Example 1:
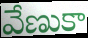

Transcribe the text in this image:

వేణుకా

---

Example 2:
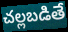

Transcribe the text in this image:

చల్లబడితే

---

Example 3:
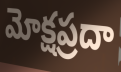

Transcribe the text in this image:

మోక్షప్రదా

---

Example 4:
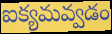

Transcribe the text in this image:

ఐక్యమవ్వడం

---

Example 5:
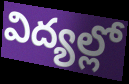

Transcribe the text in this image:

విద్యల్లో